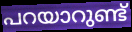
പറയാറുണ്ട്